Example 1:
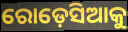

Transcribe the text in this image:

ରୋଡ଼େସିଆକୁ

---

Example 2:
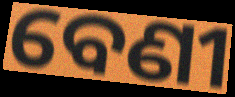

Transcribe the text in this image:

ବେଣୀ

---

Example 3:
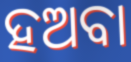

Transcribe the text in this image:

ହଅବା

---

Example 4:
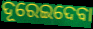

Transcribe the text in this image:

ଦୂରେଇଦେବା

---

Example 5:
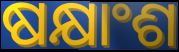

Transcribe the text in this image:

ଷକ୍ଷାଂଶ